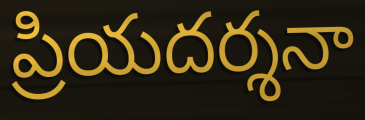
ప్రియదర్శనా